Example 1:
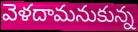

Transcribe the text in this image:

వెళదామనుకున్న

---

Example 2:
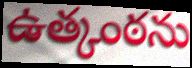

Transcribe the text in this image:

ఉత్కంఠను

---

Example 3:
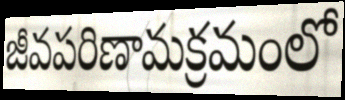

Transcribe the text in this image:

జీవపరిణామక్రమంలో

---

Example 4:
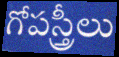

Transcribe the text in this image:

గోపస్త్రీలు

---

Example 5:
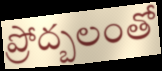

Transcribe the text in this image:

ప్రోద్బలంతో